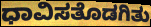
ಧಾವಿಸತೊಡಗಿತು